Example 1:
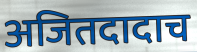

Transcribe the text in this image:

अजितदादाच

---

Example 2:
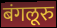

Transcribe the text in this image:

बंगलूरु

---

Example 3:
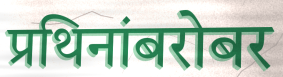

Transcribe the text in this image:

प्रथिनांबरोबर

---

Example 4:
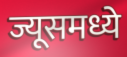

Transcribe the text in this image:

ज्यूसमध्ये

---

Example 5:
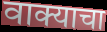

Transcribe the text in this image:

वाक्याचा